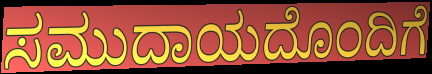
ಸಮುದಾಯದೊಂದಿಗೆ